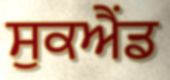
ਸੁਕਐਂਡ